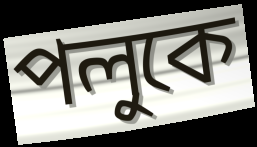
পলুকে